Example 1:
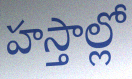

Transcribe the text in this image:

హస్తాల్లో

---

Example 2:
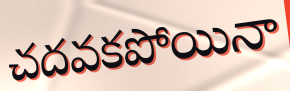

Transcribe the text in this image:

చదవకపోయినా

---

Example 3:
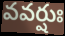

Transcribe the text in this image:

వవర్షుః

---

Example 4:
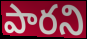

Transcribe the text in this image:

పారని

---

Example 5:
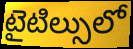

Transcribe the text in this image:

టైటిల్సులో